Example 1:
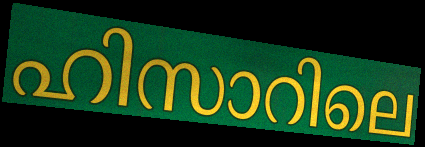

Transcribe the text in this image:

ഹിസാറിലെ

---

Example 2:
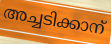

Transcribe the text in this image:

അച്ചടിക്കാന്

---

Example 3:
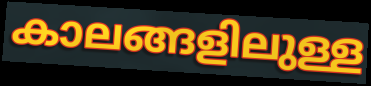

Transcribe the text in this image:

കാലങ്ങളിലുള്ള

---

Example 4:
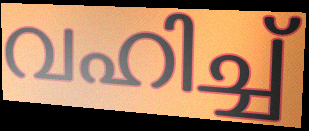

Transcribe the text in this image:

വഹിച്ച്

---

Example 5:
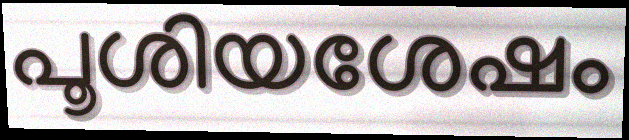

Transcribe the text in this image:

പൂശിയശേഷം